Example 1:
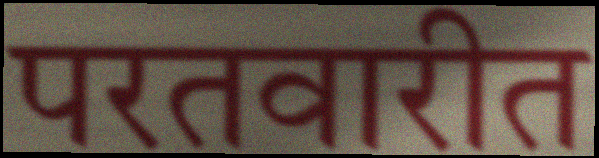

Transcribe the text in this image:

परतवारीत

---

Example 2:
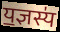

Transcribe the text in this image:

य॒ज्ञस्य॑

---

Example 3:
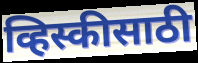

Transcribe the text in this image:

व्हिस्कीसाठी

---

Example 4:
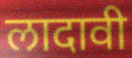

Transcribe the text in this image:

लादावी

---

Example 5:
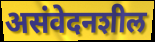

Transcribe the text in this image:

असंवेदनशील